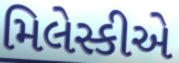
મિલેસ્કીએ